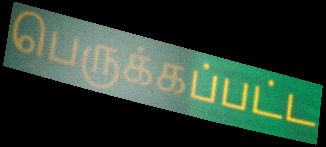
பெருக்கப்பட்ட